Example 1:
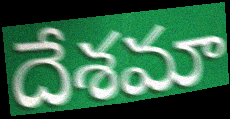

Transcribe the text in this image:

దేశమా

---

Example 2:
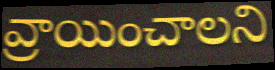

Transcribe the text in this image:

వ్రాయించాలని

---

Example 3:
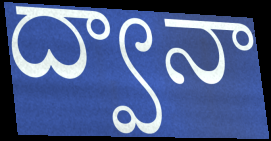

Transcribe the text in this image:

ద్వానా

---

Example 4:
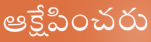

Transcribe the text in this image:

ఆక్షేపించరు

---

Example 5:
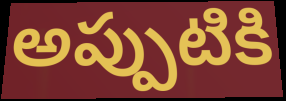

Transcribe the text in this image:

అప్పుటికి